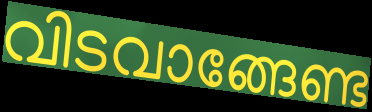
വിടവാങ്ങേണ്ട